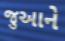
જુઆને